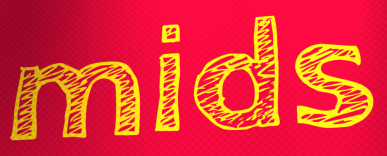
mids